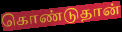
கொண்டுதான்